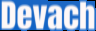
Devach